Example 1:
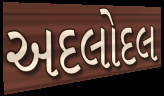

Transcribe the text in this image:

અદલોદલ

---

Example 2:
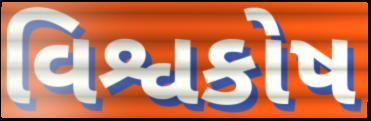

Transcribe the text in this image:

વિશ્વકોષ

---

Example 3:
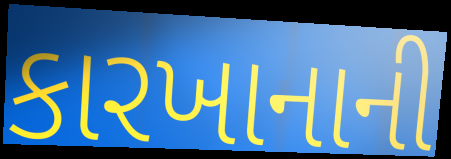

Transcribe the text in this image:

કારખાનાની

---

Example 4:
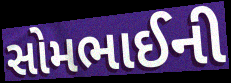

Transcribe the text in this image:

સોમભાઈની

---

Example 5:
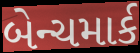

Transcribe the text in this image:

બેન્ચમાર્ક